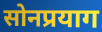
सोनप्रयाग